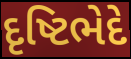
દૃષ્ટિભેદે